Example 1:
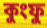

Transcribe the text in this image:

কুংফু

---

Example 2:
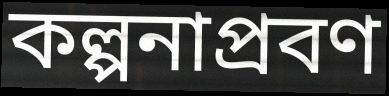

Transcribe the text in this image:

কল্পনাপ্রবণ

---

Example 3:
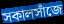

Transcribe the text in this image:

সকালসাঁজে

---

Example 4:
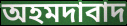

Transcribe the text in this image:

অহমদাবাদ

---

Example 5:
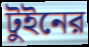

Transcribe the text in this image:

টুইনের